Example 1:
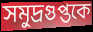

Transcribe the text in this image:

সমুদ্রগুপ্তকে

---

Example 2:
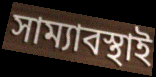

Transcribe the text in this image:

সাম্যাবস্থাই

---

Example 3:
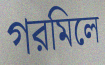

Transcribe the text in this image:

গরমিলে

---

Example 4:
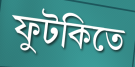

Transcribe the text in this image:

ফুটকিতে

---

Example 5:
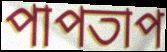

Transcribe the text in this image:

পাপতাপ